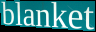
blanket